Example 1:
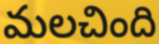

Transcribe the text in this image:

మలచింది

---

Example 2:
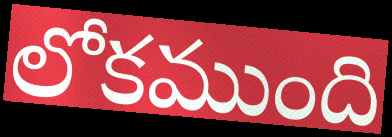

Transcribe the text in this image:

లోకముంది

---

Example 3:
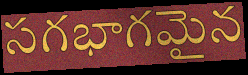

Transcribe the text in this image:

సగభాగమైన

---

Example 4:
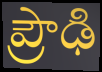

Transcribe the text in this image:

ప్రౌఢి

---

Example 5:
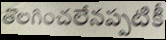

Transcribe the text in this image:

తొలగించలేనప్పటికీ